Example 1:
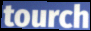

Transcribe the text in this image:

tourch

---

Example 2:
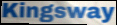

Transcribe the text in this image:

Kingsway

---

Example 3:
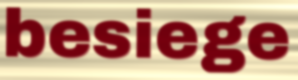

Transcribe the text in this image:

besiege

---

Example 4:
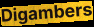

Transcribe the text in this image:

Digambers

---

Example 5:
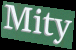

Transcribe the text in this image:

Mity